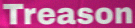
Treason